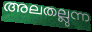
അലതല്ലുന്ന